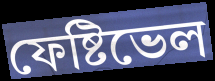
ফেষ্টিভেল